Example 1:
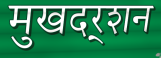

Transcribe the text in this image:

मुखदर्शन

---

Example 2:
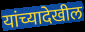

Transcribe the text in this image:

यांच्यादेखील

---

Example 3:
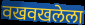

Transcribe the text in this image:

वखवखलेला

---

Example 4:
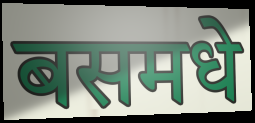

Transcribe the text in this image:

बसमधे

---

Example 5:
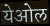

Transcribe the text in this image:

येओल